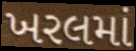
ખરલમાં